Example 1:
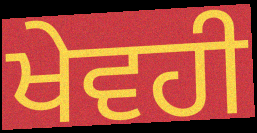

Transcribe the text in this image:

ਖੇਵਹੀ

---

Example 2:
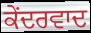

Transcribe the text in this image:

ਕੇਂਦਰਵਾਦ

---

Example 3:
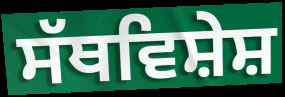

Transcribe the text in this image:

ਸੱਥਵਿਸ਼ੇਸ਼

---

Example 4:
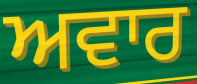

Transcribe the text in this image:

ਅਵਾਰ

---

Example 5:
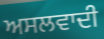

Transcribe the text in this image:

ਅਸਲਵਾਦੀ